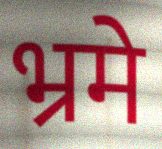
भ्रमे